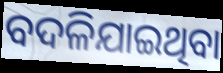
ବଦଳିଯାଇଥିବା